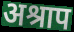
अश्राप